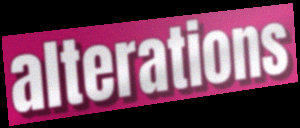
alterations